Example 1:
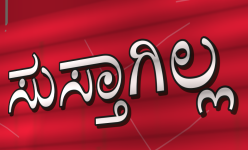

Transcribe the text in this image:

ಸುಸ್ತಾಗಿಲ್ಲ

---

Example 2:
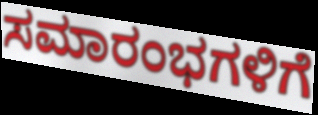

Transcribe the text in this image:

ಸಮಾರಂಭಗಳಿಗೆ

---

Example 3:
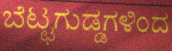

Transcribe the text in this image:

ಬೆಟ್ಟಗುಡ್ಡಗಳಿಂದ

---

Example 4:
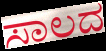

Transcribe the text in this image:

ಸಾಲದ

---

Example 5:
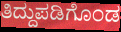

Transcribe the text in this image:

ತಿದ್ದುಪಡಿಗೊಂಡ